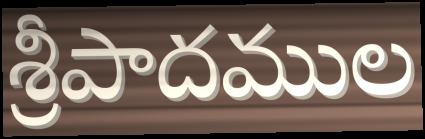
శ్రీపాదముల